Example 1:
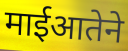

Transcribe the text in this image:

माईआतेने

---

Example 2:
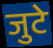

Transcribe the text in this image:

जुटे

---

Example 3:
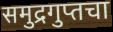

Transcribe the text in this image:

समुद्रगुप्तचा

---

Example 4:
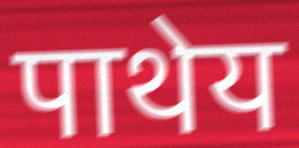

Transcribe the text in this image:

पाथेय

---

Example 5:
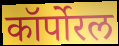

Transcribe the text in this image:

कॉर्पोरल